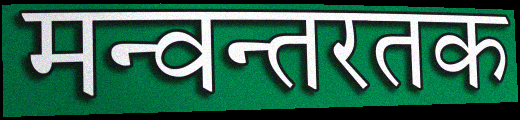
मन्वन्तरतक